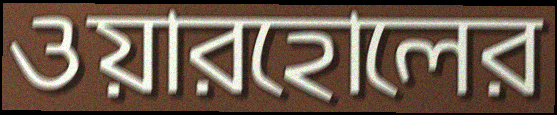
ওয়ারহোলের